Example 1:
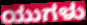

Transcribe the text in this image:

ಯುಗಳು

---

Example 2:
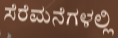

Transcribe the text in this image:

ಸೆರೆಮನೆಗಳಲ್ಲಿ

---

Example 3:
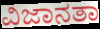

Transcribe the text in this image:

ವಿಜಾನತಾ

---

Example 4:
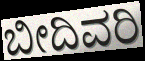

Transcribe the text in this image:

ಬೀದಿವರಿ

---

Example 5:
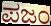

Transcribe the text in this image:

ಪಜಂ